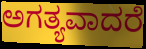
ಅಗತ್ಯವಾದರೆ